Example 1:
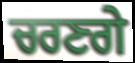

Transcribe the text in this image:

ਚਰਣਗੇ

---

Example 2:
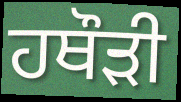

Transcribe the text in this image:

ਹਥੌੜੀ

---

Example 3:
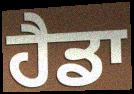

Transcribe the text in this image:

ਹੈਡਾ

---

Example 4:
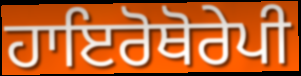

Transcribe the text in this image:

ਹਾਇਰੋਥੋਰੇਪੀ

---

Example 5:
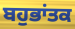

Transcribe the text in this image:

ਬਹੁਭਾਂਤਕ